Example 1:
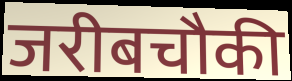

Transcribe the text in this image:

जरीबचौकी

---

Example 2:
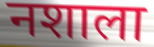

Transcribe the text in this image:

नशाला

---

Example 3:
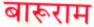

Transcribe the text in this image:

बारूराम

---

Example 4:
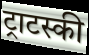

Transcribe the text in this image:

ट्राटस्की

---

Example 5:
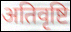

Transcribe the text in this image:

अतिवृष्टि